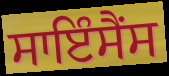
ਸਾਇੰਸੈਂਸ